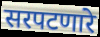
सरपटणारे